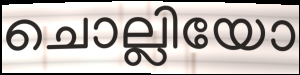
ചൊല്ലിയോ